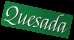
Quesada